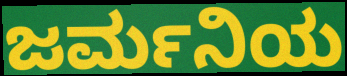
ಜರ್ಮನಿಯ